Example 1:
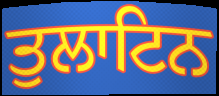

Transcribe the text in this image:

ਤੁਲਾਟਿਨ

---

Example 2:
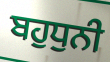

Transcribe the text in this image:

ਬਹੁਧੁਨੀ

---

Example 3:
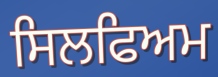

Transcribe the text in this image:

ਸਿਲਫਿਅਮ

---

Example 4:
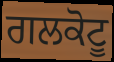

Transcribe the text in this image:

ਗਲਕੋਟੂ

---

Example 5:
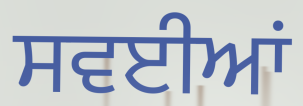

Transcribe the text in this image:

ਸਵਈਆਂ